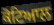
ਕੋਟਿਆਲ